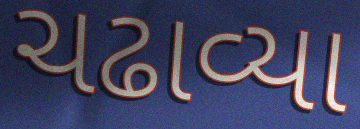
ચઢાવ્યા